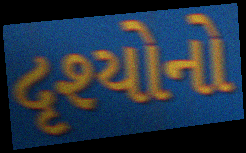
દૃશ્યોનો